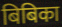
बिबिका